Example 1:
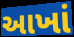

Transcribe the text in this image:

આખાં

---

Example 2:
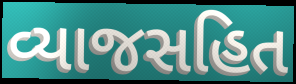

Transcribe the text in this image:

વ્યાજસહિત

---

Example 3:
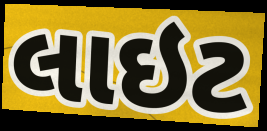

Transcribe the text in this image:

લાઇટ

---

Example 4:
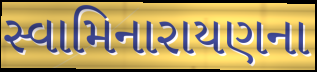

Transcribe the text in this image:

સ્વામિનારાયણના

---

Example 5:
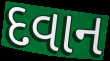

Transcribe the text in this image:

દવાન